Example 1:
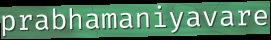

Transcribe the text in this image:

prabhamaniyavare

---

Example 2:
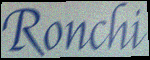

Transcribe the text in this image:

Ronchi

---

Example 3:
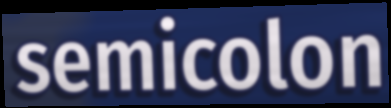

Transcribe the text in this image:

semicolon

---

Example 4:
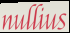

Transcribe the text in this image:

nullius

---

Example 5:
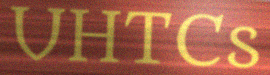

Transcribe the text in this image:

UHTCs